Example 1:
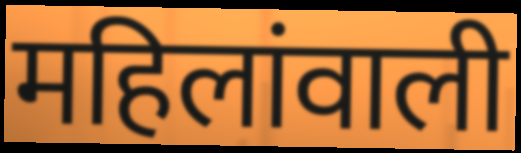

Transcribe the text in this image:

महिलांवाली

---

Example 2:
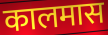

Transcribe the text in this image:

कालमास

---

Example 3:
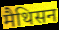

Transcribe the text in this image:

मैथिसन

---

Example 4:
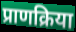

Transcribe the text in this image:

प्राणक्रिया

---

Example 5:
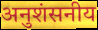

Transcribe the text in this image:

अनुशंसनीय